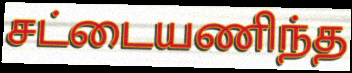
சட்டையணிந்த